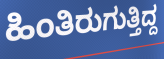
ಹಿಂತಿರುಗುತ್ತಿದ್ದ